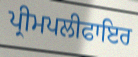
ਪ੍ਰੀਮਪਲੀਫਾਇਰ